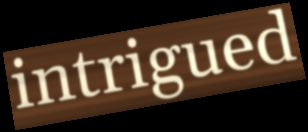
intrigued